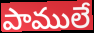
పాములే